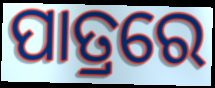
ପାତ୍ରରେ